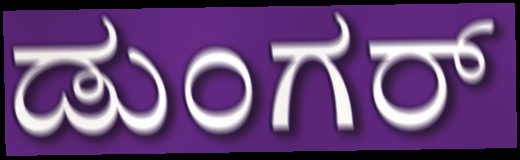
ಡುಂಗರ್